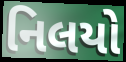
નિલયો